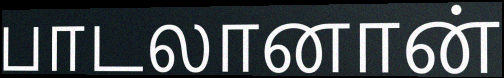
பாடலானான்